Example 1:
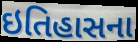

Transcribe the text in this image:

ઇતિહાસના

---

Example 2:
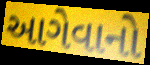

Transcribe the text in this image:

આગેવાનો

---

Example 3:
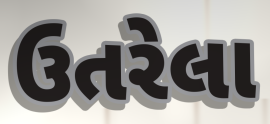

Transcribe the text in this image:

ઉતરેલા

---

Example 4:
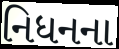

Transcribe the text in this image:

નિધનના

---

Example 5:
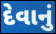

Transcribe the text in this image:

દેવાનું